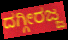
ದಗ್ಗೀರಜ್ಜ